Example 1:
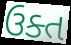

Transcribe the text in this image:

ઉક્ત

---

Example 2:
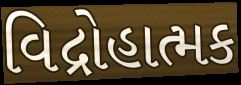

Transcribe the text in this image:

વિદ્રોહાત્મક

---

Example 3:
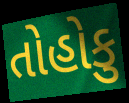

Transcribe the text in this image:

તોહોકુ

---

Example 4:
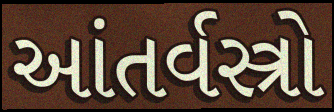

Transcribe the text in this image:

આંતર્વસ્ત્રો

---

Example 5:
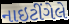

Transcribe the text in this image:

નાઇટીંગેલે